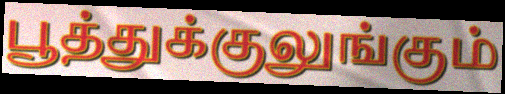
பூத்துக்குலுங்கும்